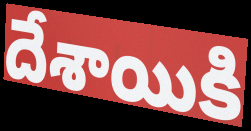
దేశాయికి